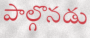
పాల్గొనడు